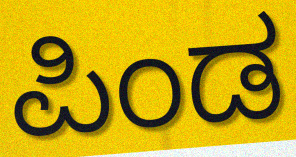
ಪಿಂಡ